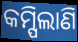
କମ୍ପିଲାଣି